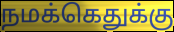
நமக்கெதுக்கு